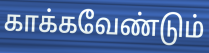
காக்கவேண்டும்